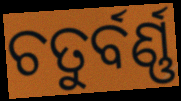
ଚତୁର୍ବର୍ଣ୍ଣ